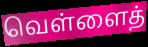
வெள்ளைத்